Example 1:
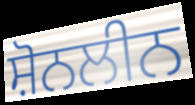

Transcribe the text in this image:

ਸ਼ੋਨਲੀਨ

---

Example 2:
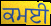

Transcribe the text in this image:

ਕਮਈ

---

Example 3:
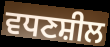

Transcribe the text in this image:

ਵਧਣਸ਼ੀਲ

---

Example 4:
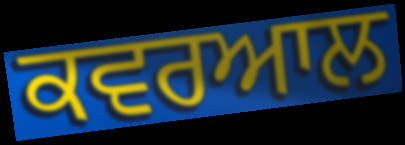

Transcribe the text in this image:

ਕਵਰਆਲ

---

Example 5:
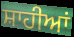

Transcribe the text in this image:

ਸ਼ਾਹੀਆਂ